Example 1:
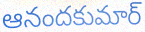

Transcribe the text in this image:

ఆనందకుమార్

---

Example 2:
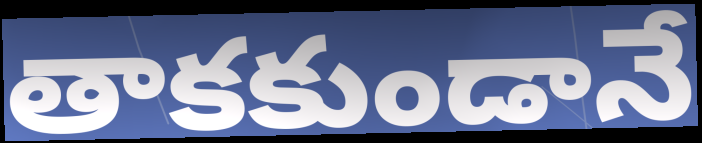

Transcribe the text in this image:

తాకకుండానే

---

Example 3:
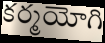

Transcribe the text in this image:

కర్మయోగి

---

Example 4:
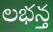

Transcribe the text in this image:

లభన్త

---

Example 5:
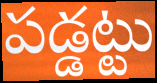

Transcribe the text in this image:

పడ్డట్టు